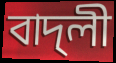
বাদ্‌লী